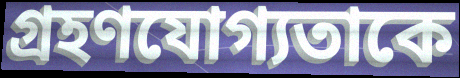
গ্রহণযোগ্যতাকে